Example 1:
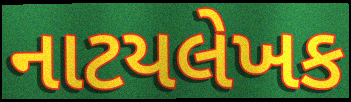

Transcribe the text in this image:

નાટયલેખક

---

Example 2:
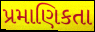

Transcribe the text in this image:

પ્રમાણિકતા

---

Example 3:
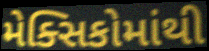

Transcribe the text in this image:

મેક્સિકોમાંથી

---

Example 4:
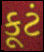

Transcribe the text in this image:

કૂટં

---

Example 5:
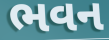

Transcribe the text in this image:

ભવન